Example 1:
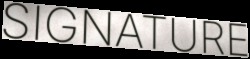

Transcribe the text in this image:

SIGNATURE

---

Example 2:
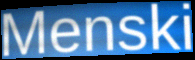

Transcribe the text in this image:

Menski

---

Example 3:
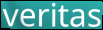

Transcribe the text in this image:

veritas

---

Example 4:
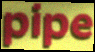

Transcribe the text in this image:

pipe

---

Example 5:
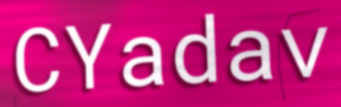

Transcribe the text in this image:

CYadav